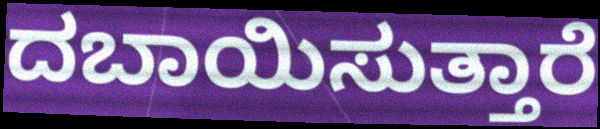
ದಬಾಯಿಸುತ್ತಾರೆ